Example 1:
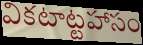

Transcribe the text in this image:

వికటాట్టహాసం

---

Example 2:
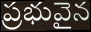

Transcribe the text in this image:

ప్రభువైన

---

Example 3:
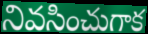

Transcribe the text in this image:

నివసించుగాక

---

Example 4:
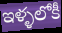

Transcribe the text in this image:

ఇళ్ళలోకీ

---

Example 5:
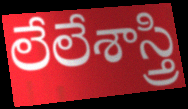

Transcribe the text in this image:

లేలేశాస్త్రి